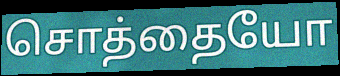
சொத்தையோ